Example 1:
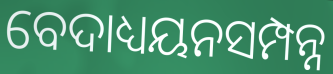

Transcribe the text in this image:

ବେଦାଧ୍ୟୟନସମ୍ପନ୍ନ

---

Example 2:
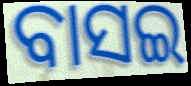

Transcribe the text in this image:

ବାସଇ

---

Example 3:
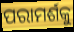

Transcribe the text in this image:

ପରାମର୍ଶକୁ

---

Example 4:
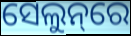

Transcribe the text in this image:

ସେଲୁନ୍‌ରେ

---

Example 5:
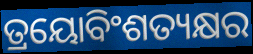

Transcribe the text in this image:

ତ୍ରୟୋବିଂଶତ୍ୟକ୍ଷର